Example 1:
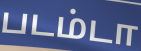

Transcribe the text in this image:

படம்டா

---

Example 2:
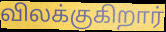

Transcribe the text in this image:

விலக்குகிறார்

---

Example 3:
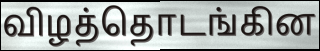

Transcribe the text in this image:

விழத்தொடங்கின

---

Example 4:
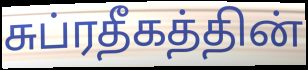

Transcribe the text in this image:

சுப்ரதீகத்தின்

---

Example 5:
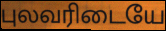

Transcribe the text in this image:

புலவரிடையே